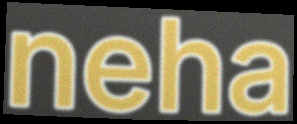
neha